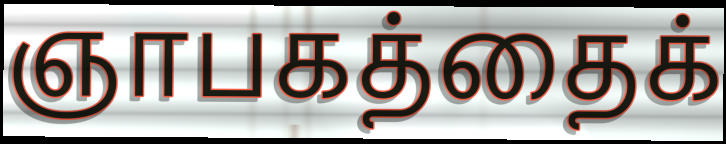
ஞாபகத்தைக்